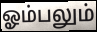
ஓம்பலும்